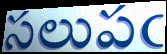
సలుపఁ